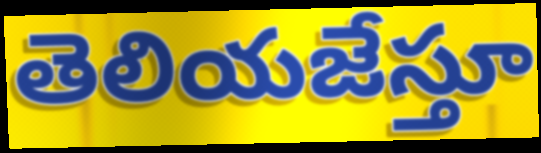
తెలియజేస్తూ